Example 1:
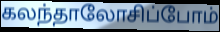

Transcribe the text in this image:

கலந்தாலோசிப்போம்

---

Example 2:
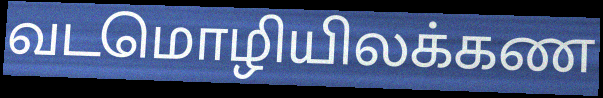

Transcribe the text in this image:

வடமொழியிலக்கண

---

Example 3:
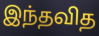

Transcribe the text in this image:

இந்தவித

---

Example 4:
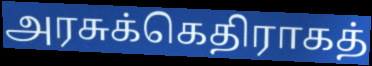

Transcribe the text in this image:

அரசுக்கெதிராகத்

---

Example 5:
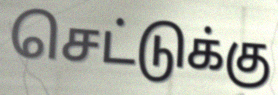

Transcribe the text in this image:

செட்டுக்கு